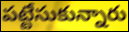
పట్టేసుకున్నారు